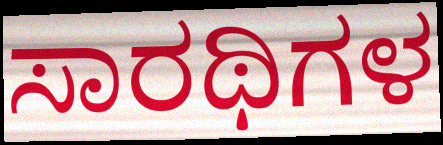
ಸಾರಥಿಗಳ